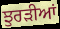
ਝੁਰੜੀਆਂ